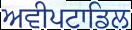
ਅਵੀਪਟਾਡਿਲ